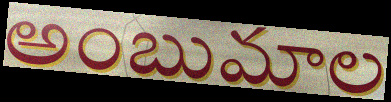
అంబుమాల